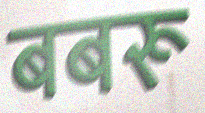
बबरू